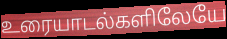
உரையாடல்களிலேயே